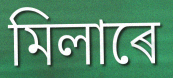
মিলাৰে